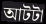
আটটা